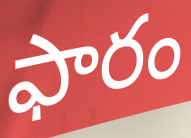
ఫారం